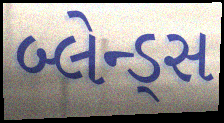
બ્લેન્ડ્સ